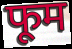
फूम